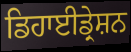
ਡਿਹਾਈਡ੍ਰੇਸ਼ਨ